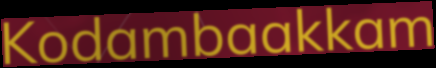
Kodambaakkam